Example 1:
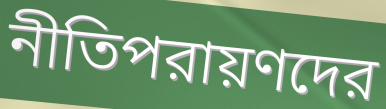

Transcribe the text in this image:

নীতিপরায়ণদের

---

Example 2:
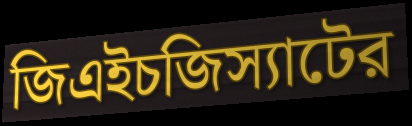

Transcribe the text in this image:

জিএইচজিস্যাটের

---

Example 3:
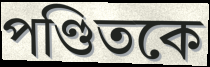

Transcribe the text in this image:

পণ্ডিতকে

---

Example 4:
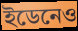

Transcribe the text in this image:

ইডেনেও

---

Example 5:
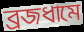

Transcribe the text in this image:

ব্রজধামে